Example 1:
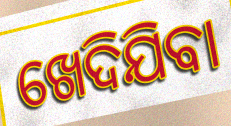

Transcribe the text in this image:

ଖେଦିଯିବା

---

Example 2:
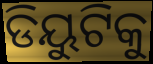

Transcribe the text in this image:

ଡିୟୁଟିକୁ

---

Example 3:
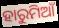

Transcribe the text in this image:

ହାରୁମିଆଁ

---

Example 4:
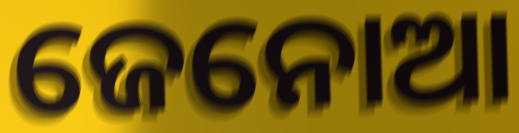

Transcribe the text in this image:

ଜେନୋଆ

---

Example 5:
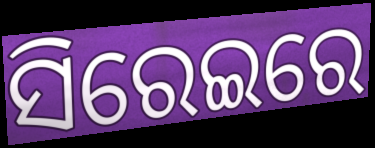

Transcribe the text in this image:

ସିରେଇରେ